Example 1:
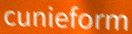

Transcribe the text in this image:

cunieform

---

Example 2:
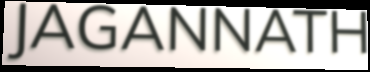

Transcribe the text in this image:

JAGANNATH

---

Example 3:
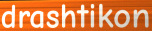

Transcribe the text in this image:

drashtikon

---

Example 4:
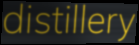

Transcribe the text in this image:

distillery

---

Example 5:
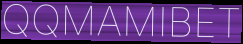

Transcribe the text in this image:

QQMAMIBET